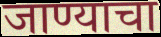
जाण्‍याचा